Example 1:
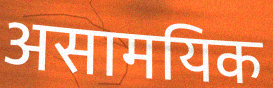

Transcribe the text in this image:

असामयिक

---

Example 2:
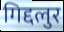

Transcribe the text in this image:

गिद्दलुर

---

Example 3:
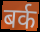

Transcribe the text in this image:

बर्क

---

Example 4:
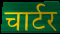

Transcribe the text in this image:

चार्टर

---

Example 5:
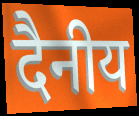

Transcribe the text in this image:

दैनीय